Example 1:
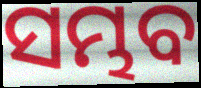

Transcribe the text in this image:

ସମ୍ଭବ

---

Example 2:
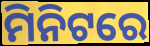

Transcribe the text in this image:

ମିନିଟରେ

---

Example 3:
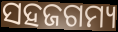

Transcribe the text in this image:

ସହଜଗମ୍ୟ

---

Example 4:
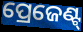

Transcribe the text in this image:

ପ୍ରେଜେଣ୍ଟ୍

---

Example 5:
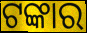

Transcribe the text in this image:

ଟଙ୍କାର